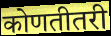
कोणतीतरी